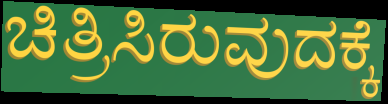
ಚಿತ್ರಿಸಿರುವುದಕ್ಕೆ